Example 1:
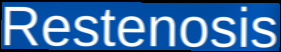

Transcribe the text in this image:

Restenosis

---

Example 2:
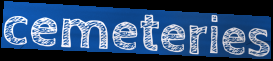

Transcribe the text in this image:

cemeteries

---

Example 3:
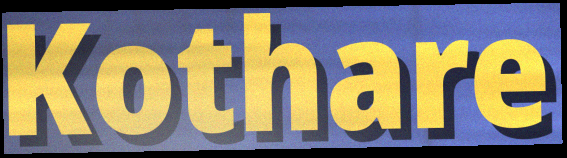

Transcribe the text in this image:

Kothare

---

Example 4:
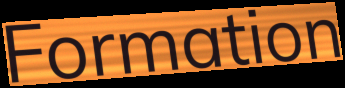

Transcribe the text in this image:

Formation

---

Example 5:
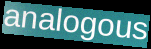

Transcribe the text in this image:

analogous